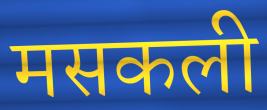
मसकली